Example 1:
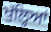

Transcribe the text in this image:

ਖੁੱਲ੍ਹਿਆਂ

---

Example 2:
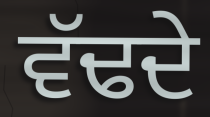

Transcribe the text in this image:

ਵੱਢਦੇ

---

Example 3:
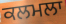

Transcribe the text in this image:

ਕਲਮਲਾ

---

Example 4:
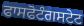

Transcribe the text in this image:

ਫਾਸਫੋਟੰਗਸਟੇਟ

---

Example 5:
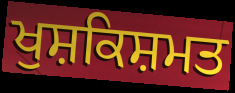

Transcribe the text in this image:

ਖੁਸ਼ਕਿਸ਼ਮਤ